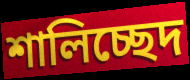
শালিচ্ছেদ